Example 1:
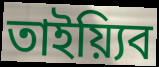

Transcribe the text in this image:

তাইয়্যিব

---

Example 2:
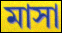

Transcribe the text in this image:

মাসা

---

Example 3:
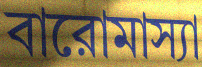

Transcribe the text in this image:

বারোমাস্যা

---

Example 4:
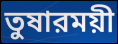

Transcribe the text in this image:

তুষারময়ী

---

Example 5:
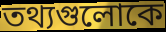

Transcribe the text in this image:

তথ্যগুলোকে